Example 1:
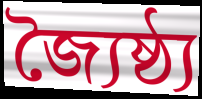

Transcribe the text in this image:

জ্যৈষ্ঠ্য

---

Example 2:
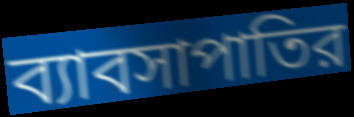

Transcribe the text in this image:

ব্যাবসাপাতির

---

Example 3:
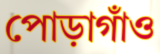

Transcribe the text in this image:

পোড়াগাঁও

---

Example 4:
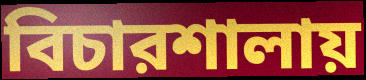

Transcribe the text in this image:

বিচারশালায়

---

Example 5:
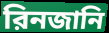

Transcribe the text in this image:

রিনজানি